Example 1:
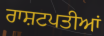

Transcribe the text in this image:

ਰਾਸ਼ਟਪਤੀਆਂ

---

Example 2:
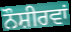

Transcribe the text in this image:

ਨੌਸ਼ੀਰਵਾਂ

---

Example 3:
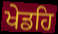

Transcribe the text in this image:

ਖੇਡਹਿ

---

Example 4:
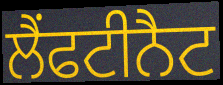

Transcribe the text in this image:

ਲੈਂਫਟੀਨੈਟ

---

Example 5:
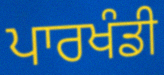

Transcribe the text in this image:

ਪਾਰਖੰਡੀ